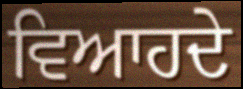
ਵਿਆਹਦੇ